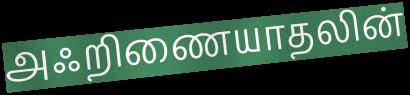
அஃறிணையாதலின்